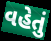
વહેતું